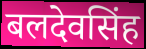
बलदेवसिंह